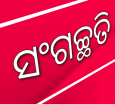
ସଂଗଚ୍ଛତି